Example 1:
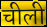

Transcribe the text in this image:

चीली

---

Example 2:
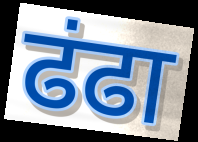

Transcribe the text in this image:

ढंढा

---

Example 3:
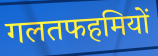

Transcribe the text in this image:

गलतफहमियों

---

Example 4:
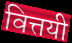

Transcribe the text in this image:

वित्तयी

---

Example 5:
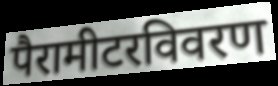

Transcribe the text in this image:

पैरामीटरविवरण